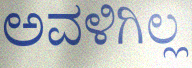
ಅವಳಿಗಿಲ್ಲ